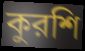
কুরশি